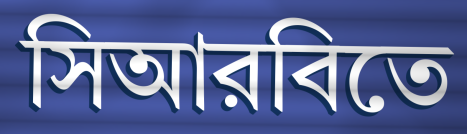
সিআরবিতে